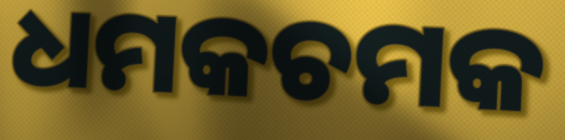
ଧମକଚମକ